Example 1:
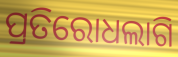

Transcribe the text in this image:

ପ୍ରତିରୋଧଲାଗି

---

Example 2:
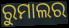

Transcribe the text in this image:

ରୁମାଲର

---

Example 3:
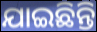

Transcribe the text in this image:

ଯାଇଛିନ୍ତି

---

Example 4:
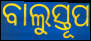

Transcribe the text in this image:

ବାଲୁସ୍ତୂପ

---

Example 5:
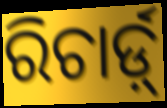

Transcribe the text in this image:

ରିଚାର୍ଡ଼୍